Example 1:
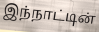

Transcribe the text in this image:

இந்நாட்டின்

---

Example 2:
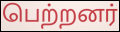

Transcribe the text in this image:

பெற்றனர்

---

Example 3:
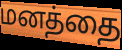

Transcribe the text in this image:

மனத்தை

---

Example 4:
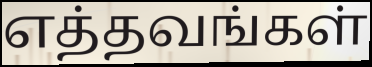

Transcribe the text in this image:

எத்தவங்கள்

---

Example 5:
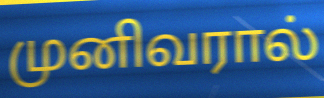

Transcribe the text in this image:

முனிவரால்